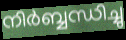
നിർബ്ബന്ധിച്ചു